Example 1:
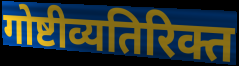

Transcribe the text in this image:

गोष्टीव्यतिरिक्त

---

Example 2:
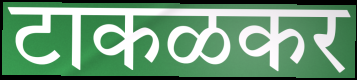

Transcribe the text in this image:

टाकळकर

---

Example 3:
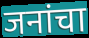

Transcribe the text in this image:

जनांचा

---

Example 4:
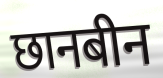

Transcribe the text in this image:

छानबीन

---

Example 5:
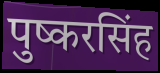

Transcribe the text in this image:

पुष्करसिंह